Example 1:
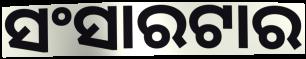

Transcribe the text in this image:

ସଂସାରଟାର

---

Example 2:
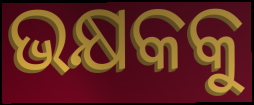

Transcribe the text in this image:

ଭକ୍ଷକକୁ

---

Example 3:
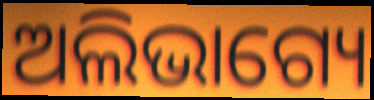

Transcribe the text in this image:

ଅଲିଭାଗ୍ୟେ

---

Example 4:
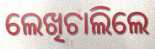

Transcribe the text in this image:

ଲେଖିଚାଲିଲେ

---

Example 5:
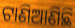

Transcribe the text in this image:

ଟାଣିଆଣିଛି